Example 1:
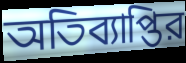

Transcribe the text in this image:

অতিব্যাপ্তির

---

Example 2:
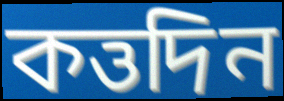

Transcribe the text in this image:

কত্তদিন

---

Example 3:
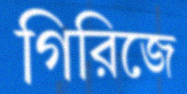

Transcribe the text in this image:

গিরিজে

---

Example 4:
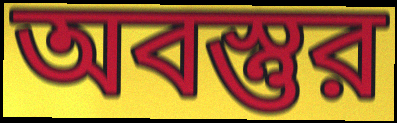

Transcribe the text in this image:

অবস্তুর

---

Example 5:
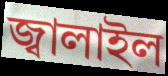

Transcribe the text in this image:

জ্বালাইল